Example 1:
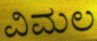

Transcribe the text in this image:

ವಿಮಲ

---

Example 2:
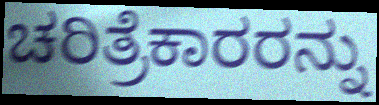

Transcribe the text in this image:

ಚರಿತ್ರೆಕಾರರನ್ನು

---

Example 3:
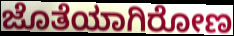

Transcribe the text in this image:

ಜೊತೆಯಾಗಿರೋಣ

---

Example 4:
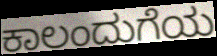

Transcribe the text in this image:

ಕಾಲಂದುಗೆಯ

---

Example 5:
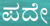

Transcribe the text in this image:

ಪದೇ